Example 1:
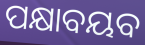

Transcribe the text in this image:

ପକ୍ଷାବୟବ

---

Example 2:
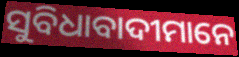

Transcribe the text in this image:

ସୁବିଧାବାଦୀମାନେ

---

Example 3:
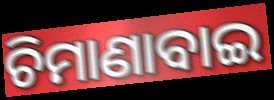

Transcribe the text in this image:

ଚିମାଣାବାଇ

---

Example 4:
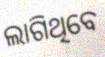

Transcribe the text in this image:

ଲାଗିଥିବେ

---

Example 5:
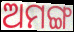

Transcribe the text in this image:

ଅମଙ୍ଗ